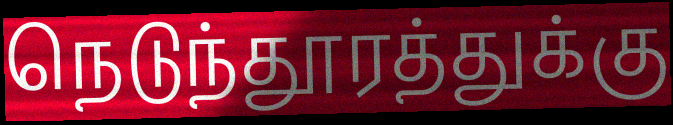
நெடுந்தூரத்துக்கு